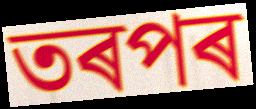
তৰপৰ